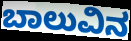
ಬಾಲುವಿನ